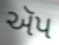
ઍપ